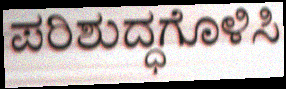
ಪರಿಶುದ್ಧಗೊಳಿಸಿ